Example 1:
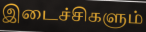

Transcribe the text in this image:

இடைச்சிகளும்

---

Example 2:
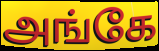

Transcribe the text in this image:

அங்கே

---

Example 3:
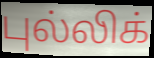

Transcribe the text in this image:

புல்லிக்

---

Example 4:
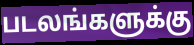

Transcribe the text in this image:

படலங்களுக்கு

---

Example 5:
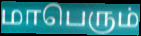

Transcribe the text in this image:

மாபெரும்